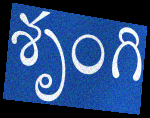
శృంగి